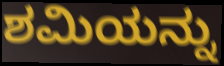
ಶಮಿಯನ್ನು